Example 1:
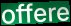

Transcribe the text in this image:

offere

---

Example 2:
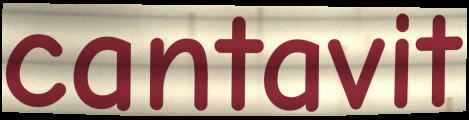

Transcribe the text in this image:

cantavit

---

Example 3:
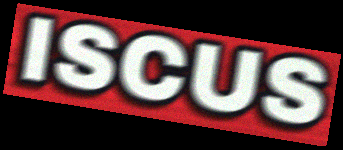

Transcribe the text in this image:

ISCUS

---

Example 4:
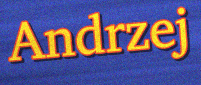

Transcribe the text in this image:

Andrzej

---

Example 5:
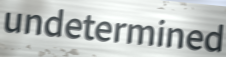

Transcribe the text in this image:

undetermined